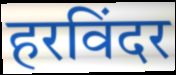
हरविंदर